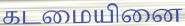
கடமையினை